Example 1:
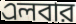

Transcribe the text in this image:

এলবার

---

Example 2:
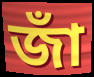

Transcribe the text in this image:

জাঁ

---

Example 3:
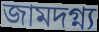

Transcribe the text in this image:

জামদগ্ন্য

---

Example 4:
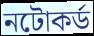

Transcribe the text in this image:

নটোকর্ড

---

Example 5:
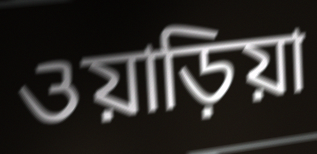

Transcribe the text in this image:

ওয়াড়িয়া